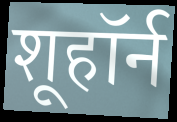
शूहॉर्न